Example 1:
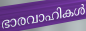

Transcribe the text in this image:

ഭാരവാഹികൾ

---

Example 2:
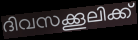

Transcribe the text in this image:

ദിവസക്കൂലിക്ക്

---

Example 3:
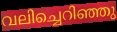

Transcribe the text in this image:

വലിച്ചെറിഞ്ഞു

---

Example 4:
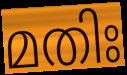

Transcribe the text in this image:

മതിഃ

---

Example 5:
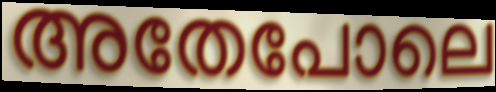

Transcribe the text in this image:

അതേപോലെ